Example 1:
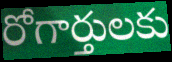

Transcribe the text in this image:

రోగార్తులకు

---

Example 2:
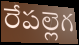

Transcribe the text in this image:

రేపల్లెగ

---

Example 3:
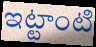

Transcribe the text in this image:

ఇట్టాంటి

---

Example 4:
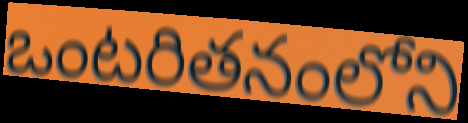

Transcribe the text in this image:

ఒంటరితనంలోని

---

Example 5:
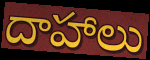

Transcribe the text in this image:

దాహాలు